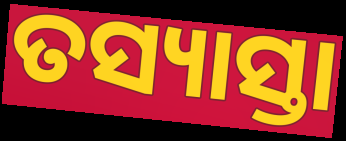
ତସ୍ୟାସ୍ତା